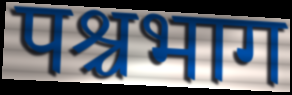
पश्चभाग